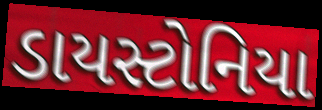
ડાયસ્ટોનિયા